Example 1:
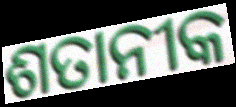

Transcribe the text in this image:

ଶତାନୀକ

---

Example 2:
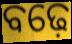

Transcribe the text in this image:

ବଢ଼େ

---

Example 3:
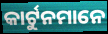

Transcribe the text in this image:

କାର୍ଟୁନମାନେ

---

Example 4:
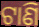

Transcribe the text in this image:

ଟାଣି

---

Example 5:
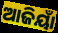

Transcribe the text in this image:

ଆଜିୟାଁ